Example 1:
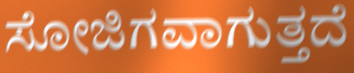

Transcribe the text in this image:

ಸೋಜಿಗವಾಗುತ್ತದೆ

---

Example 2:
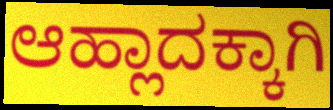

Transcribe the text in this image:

ಆಹ್ಲಾದಕ್ಕಾಗಿ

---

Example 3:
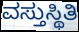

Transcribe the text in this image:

ವಸ್ತುಸ್ಥಿತಿ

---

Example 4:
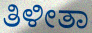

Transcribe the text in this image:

ತಿಳೀತಾ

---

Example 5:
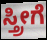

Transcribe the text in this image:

ಸ್ತ್ರೀಗೆ